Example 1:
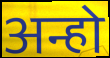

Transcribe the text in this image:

अन्हो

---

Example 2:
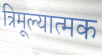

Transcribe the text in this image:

त्रिमूल्यात्मक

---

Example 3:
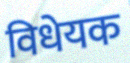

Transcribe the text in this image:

विधेयक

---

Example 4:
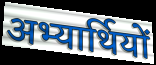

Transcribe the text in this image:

अभ्यार्थियों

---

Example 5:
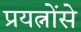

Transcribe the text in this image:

प्रयत्नोंसे